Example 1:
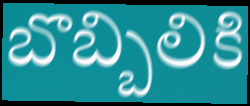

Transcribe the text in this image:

బొబ్బిలికి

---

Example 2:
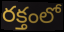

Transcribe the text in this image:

రక్తంలో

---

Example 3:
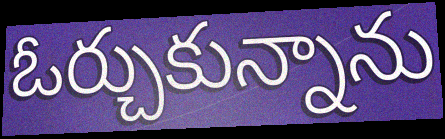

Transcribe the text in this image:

ఓర్చుకున్నాను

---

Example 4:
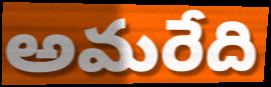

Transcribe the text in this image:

అమరేది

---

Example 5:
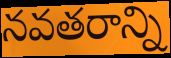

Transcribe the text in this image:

నవతరాన్ని